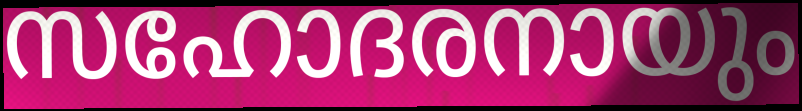
സഹോദരനായും